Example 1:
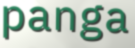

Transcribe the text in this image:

panga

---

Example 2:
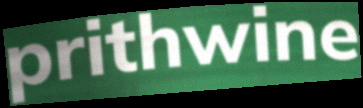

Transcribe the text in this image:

prithwine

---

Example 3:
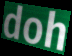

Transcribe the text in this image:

doh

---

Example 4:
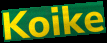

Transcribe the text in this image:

Koike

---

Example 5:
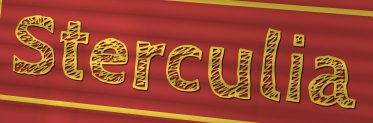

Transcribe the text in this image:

Sterculia